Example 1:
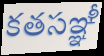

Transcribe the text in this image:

కతసఞ్ఞీ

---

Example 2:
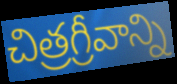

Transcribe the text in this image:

చిత్రగ్రీవాన్ని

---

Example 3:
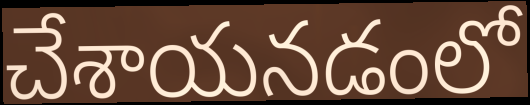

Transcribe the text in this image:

చేశాయనడంలో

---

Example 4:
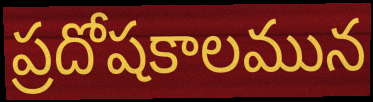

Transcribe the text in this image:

ప్రదోషకాలమున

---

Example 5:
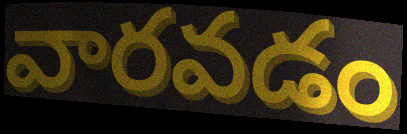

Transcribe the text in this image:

వారవడం